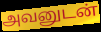
அவனுடன்